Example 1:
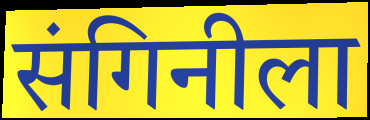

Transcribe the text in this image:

संगिनीला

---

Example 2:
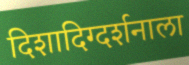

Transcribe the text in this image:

दिशादिग्दर्शनाला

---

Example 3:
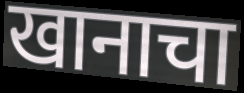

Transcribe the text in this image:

खानाचा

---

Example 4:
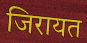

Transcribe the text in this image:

जिरायत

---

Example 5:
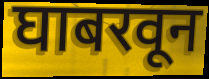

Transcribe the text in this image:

घाबरवून